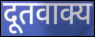
दूतवाक्य